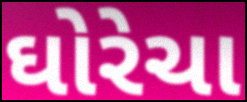
ઘોરેચા